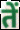
तें